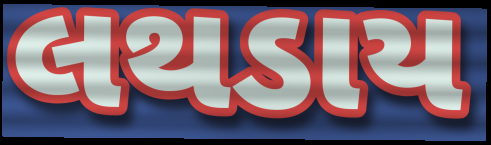
લથડાય